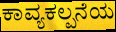
ಕಾವ್ಯಕಲ್ಪನೆಯ